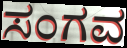
ಸಂಗವ